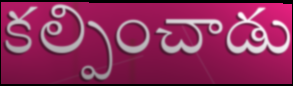
కల్పించాడు